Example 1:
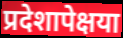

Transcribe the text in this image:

प्रदेशापेक्षया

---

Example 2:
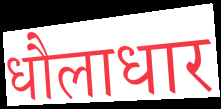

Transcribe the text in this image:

धौलाधार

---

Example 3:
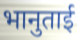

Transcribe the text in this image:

भानुताई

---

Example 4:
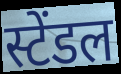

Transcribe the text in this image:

स्टेंडल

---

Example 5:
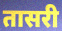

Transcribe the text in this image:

तासरी